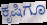
ಕೃಷಿಗೂ